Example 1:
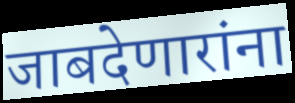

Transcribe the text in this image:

जाबदेणारांना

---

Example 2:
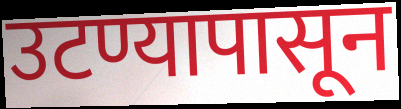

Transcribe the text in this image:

उटण्यापासून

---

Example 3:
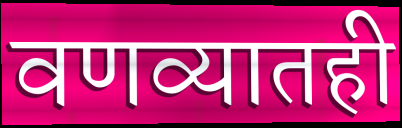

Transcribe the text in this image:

वणव्यातही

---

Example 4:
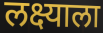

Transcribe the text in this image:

लक्ष्याला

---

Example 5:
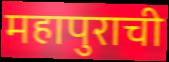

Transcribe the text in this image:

महापुराची